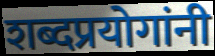
शब्दप्रयोगांनी